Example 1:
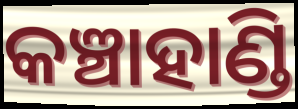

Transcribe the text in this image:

କଞ୍ଚାହାଣ୍ଡି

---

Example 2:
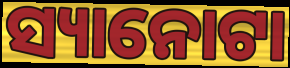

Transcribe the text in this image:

ସ୍ୟାନୋଟା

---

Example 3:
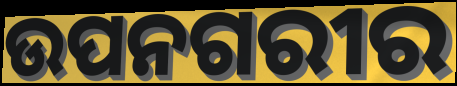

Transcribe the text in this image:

ଉପନଗରୀର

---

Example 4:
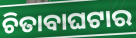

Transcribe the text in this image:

ଚିତାବାଘଟାର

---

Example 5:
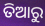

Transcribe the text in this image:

ତିଆରୁ